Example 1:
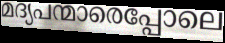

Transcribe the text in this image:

മദ്യപന്മാരെപ്പോലെ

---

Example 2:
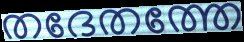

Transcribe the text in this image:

തദേതത്തേ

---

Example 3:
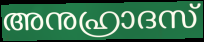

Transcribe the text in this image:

അനുഹ്രാദസ്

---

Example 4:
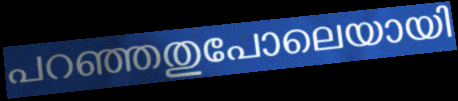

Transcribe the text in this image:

പറഞ്ഞതുപോലെയായി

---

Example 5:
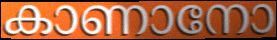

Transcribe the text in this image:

കാണാനോ